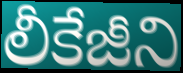
లీకేజీని